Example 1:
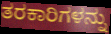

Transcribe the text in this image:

ತರಕಾರಿಗಳನ್ನು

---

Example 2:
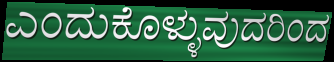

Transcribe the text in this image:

ಎಂದುಕೊಳ್ಳುವುದರಿಂದ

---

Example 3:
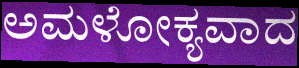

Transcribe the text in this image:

ಅಮಳೋಕ್ಯವಾದ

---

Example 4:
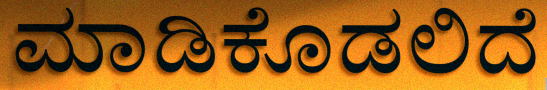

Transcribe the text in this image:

ಮಾಡಿಕೊಡಲಿದೆ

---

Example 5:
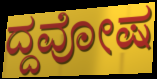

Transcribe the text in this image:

ದ್ದವೋಷ